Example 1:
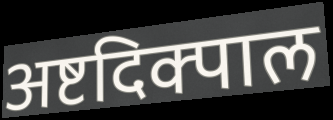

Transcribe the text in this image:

अष्टदिक्पाल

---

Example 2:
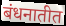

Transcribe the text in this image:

बंधनातीत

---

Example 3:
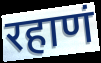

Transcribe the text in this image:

रहाणं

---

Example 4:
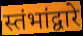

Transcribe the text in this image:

स्तंभांद्वारे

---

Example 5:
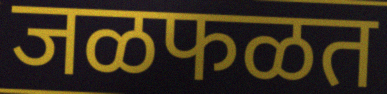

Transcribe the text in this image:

जळफळत